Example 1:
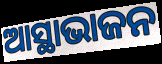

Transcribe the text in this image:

ଆସ୍ଥାଭାଜନ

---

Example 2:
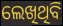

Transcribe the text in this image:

ଲେଖିଥିବି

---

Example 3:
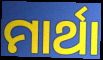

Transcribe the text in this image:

ମାର୍ଥା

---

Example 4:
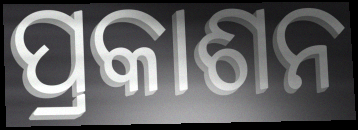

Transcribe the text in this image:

ପ୍ରକାଶନ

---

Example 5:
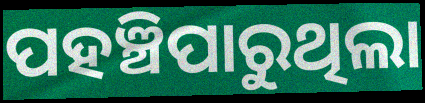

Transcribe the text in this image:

ପହଞ୍ଚିପାରୁଥିଲା